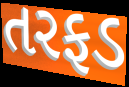
તરફડ